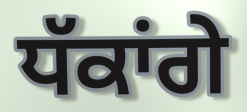
ਧੱਕਾਂਗੇ